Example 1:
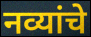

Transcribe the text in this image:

नव्यांचे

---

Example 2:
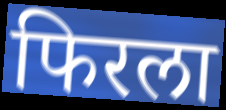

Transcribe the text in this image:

फिरला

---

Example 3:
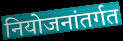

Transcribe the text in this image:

नियोजनांतर्गत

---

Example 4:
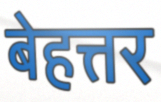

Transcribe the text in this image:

बेहत्तर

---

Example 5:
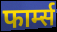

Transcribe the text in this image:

फार्म्स